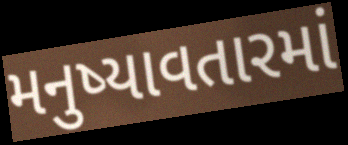
મનુષ્યાવતારમાં